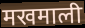
मखमाली